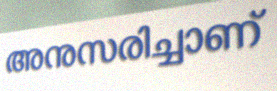
അനുസരിച്ചാണ്